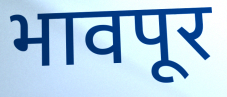
भावपूर